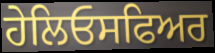
ਹੇਲਿਓਸਫਿਅਰ